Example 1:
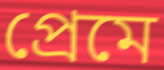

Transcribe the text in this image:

প্ৰেমে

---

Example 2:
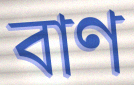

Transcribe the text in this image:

বাণ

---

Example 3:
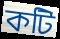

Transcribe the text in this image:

কটি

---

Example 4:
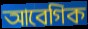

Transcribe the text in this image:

আবেগিক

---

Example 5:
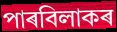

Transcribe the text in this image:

পাৰবিলাকৰ